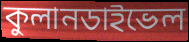
কুলানডাইভেল